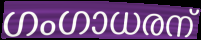
ഗംഗാധരന്